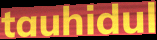
tauhidul